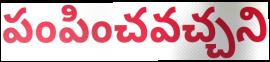
పంపించవచ్చని